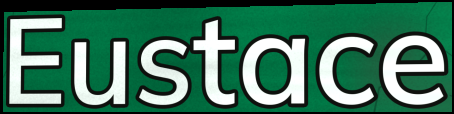
Eustace